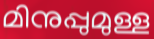
മിനുപ്പുമുള്ള